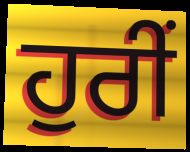
ਹੁਰੀਂ